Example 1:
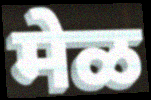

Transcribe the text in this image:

मेळ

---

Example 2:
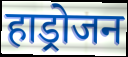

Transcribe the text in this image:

हाड्रोजन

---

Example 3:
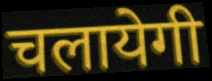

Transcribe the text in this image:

चलायेगी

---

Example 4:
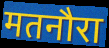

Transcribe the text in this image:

मतनौरा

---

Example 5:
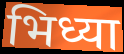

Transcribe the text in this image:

भिध्या